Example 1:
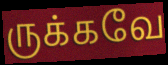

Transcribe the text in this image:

ருக்கவே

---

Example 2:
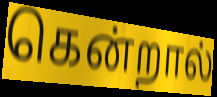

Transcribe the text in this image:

கென்றால்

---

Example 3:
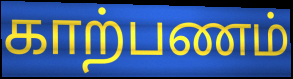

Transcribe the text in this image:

காற்பணம்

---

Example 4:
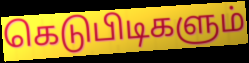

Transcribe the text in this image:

கெடுபிடிகளும்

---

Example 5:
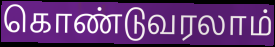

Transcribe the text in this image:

கொண்டுவரலாம்